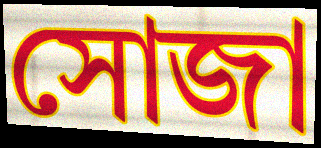
সোজা